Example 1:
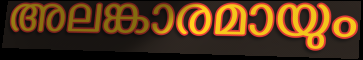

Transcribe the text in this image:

അലങ്കാരമായും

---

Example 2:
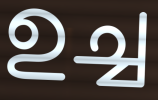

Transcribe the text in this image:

ഉച്ച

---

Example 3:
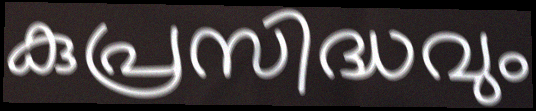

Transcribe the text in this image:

കുപ്രസിദ്ധവും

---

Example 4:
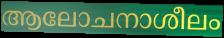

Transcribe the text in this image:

ആലോചനാശീലം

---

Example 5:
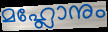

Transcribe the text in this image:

മഹ്ലോനും